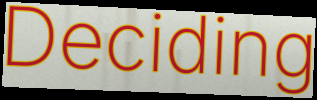
Deciding